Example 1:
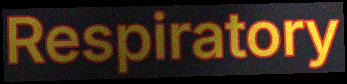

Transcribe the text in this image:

Respiratory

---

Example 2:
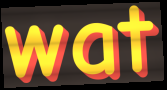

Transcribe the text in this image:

wat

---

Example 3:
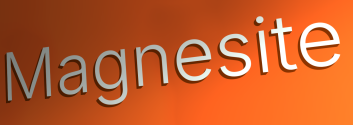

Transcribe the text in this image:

Magnesite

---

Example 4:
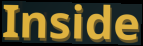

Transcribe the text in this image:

Inside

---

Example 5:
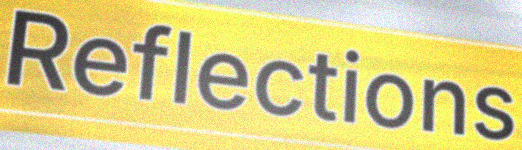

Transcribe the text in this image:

Reflections